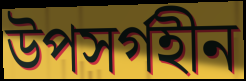
উপসর্গহীন